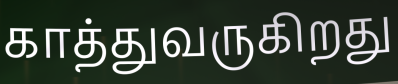
காத்துவருகிறது